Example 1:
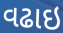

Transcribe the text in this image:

વઢાઇ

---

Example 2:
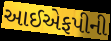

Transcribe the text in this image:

આઈએફપીની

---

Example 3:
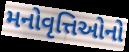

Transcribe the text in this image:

મનોવૃત્તિઓનો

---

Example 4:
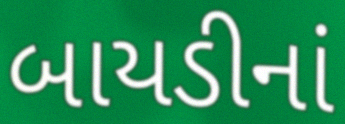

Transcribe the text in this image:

બાયડીનાં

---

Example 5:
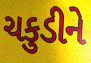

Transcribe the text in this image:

ચકુડીને